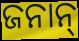
ଜନାନ୍